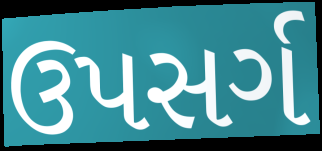
ઉપસર્ગ